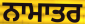
ਨਾਮਾਤਰ